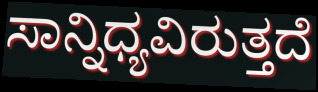
ಸಾನ್ನಿಧ್ಯವಿರುತ್ತದೆ